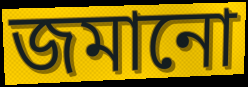
জমানো